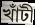
খাঁটী